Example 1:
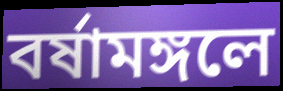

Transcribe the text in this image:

বর্ষামঙ্গলে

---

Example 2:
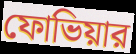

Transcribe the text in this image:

ফোভিয়ার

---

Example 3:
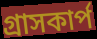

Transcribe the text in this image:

গ্রাসকার্প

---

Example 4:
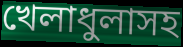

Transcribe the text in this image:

খেলাধুলাসহ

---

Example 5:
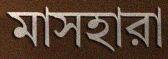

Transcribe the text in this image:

মাসহারা